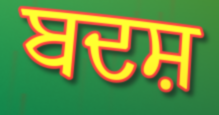
ਬਦਸ਼